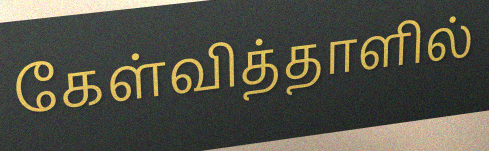
கேள்வித்தாளில்